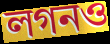
লগনও